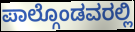
ಪಾಲ್ಗೊಂಡವರಲ್ಲಿ